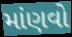
માંણવો